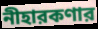
নীহারকণার